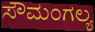
ಸೌಮಂಗಲ್ಯ